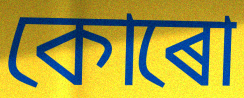
কোৰো